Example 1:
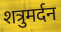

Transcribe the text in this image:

शत्रुमर्दन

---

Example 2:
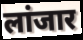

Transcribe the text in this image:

लांजार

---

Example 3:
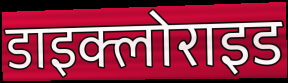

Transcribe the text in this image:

डाइक्लोराइड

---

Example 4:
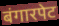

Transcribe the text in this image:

बंगारपेट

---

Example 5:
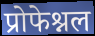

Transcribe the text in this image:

प्रोफेश्नल